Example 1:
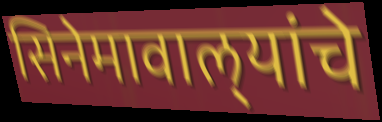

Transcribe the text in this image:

सिनेमावाल्यांचे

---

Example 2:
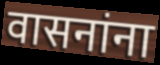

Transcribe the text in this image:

वासनांना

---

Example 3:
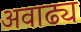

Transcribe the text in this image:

अवाढ्य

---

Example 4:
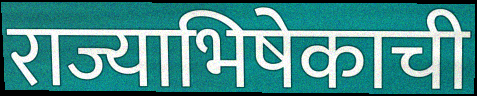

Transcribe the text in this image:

राज्याभिषेकाची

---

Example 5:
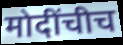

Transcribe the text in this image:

मोदींचीच